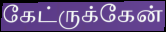
கேட்ருக்கேன்